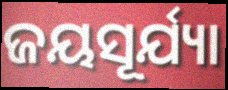
ଜୟସୂର୍ଯ୍ୟା